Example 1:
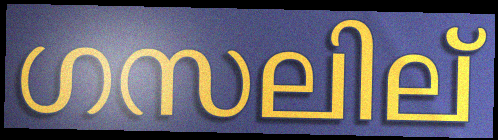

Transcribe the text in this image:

ഗസലില്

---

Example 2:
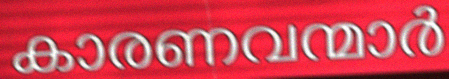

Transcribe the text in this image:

കാരണവന്മാർ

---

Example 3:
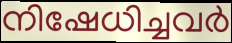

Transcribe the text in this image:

നിഷേധിച്ചവർ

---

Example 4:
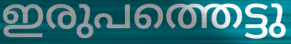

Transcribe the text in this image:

ഇരുപത്തെട്ടു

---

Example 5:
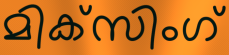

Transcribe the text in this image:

മിക്‌സിംഗ്